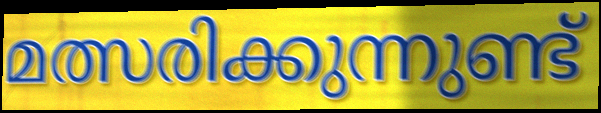
മത്സരിക്കുന്നുണ്ട്